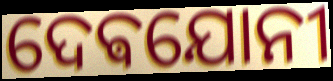
ଦେଵଯୋନୀ